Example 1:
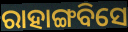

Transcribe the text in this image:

ରାହାଙ୍ଗବିସେ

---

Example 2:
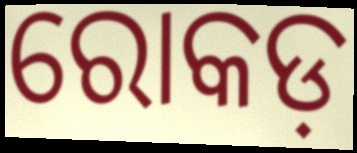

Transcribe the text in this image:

ରୋକଡ଼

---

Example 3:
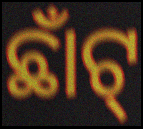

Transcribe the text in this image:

ଛାଁଟ୍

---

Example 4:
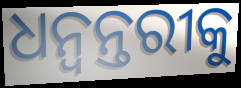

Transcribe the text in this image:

ଧନ୍ବନ୍ତରୀକୁ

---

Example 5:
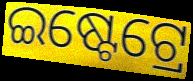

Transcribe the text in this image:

ଇଷ୍ଟେଟ୍ରେ